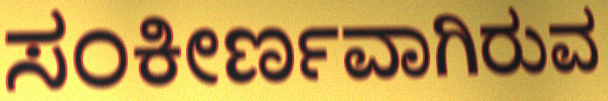
ಸಂಕೀರ್ಣವಾಗಿರುವ